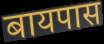
बायपास